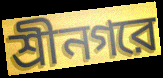
শ্রীনগরে